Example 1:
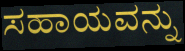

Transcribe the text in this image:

ಸಹಾಯವನ್ನು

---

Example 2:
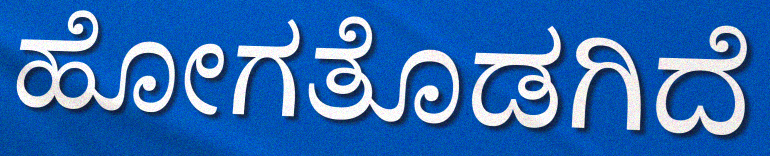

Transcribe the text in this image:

ಹೋಗತೊಡಗಿದೆ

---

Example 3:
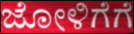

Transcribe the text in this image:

ಜೋಳಿಗೆಗೆ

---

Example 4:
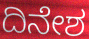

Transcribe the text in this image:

ದಿನೇಶ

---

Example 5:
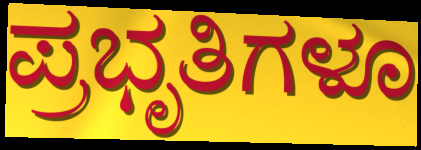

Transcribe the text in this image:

ಪ್ರಭೃತಿಗಳೂ